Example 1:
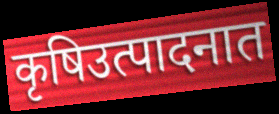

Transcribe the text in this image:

कृषिउत्पादनात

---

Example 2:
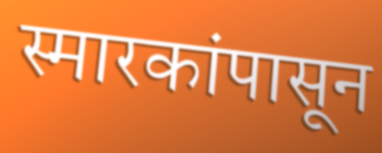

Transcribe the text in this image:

स्मारकांपासून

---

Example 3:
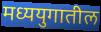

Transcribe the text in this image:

मध्ययुगातील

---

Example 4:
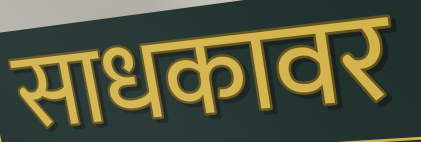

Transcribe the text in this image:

साधकावर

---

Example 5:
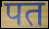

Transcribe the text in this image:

पत